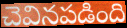
చెవినపడింది